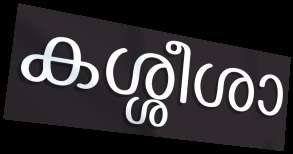
കശ്ശീശാ